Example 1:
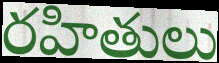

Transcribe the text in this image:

రహితులు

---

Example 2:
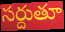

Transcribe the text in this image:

సర్దుతూ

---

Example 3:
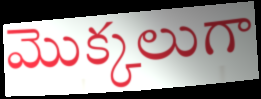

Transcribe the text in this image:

మొక్కలుగా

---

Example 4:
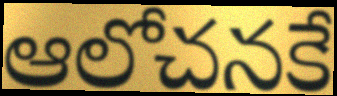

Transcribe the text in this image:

ఆలోచనకే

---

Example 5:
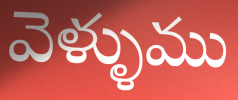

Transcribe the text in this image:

వెళ్ళుము